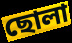
ছোলা